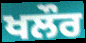
ਖਲੌਰ